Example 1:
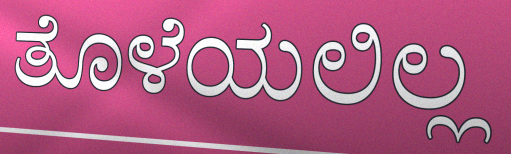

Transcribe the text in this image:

ತೊಳೆಯಲಿಲ್ಲ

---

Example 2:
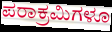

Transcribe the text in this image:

ಪರಾಕ್ರಮಿಗಳೂ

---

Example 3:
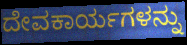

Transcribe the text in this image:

ದೇವಕಾರ್ಯಗಳನ್ನು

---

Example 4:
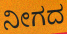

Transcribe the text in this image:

ನೀಗದ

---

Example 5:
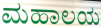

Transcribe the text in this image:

ಮಹಾಲಯ